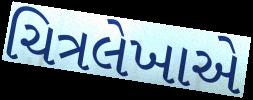
ચિત્રલેખાએ